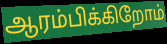
ஆரம்பிக்கிறோம்